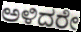
ಅಳಿದರೇ